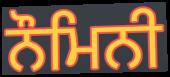
ਨੌਮਿਨੀ